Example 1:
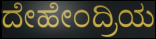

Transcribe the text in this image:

ದೇಹೇಂದ್ರಿಯ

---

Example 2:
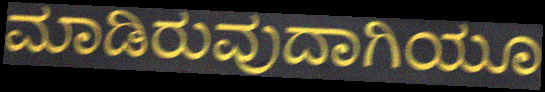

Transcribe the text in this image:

ಮಾಡಿರುವುದಾಗಿಯೂ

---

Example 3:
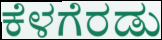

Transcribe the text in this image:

ಕೆಳಗೆರಡು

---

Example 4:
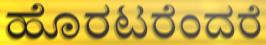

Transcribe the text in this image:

ಹೊರಟರೆಂದರೆ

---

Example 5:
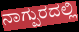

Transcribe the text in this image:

ನಾಗ್ಪುರದಲ್ಲಿ